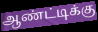
ஆண்ட்டிக்கு